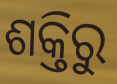
ଶକ୍ତିରୁ